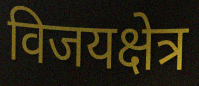
विजयक्षेत्र